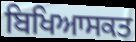
ਬਿਖਿਆਸਕਤ